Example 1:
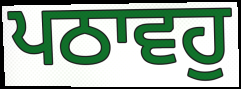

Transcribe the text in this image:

ਪਠਾਵਹੁ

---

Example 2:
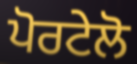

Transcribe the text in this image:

ਪੋਰਟੇਲੋ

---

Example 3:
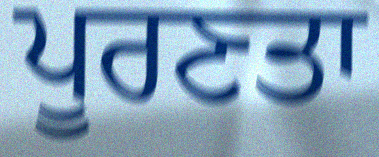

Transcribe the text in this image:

ਪੂਰਣਤਾ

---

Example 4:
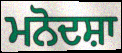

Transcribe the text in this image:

ਮਨੋਦਸ਼ਾ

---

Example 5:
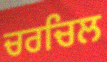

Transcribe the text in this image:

ਚਰਚਿਲ